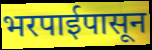
भरपाईपासून